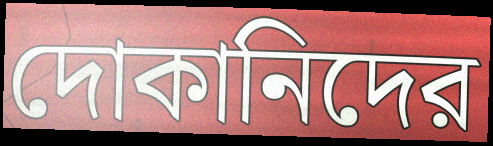
দোকানিদের